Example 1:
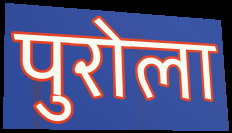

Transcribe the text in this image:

पुरोला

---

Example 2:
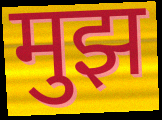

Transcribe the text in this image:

मुझ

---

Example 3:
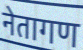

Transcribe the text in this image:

नेतागण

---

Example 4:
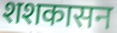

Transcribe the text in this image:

शशकासन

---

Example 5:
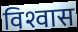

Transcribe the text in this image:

विश्वास